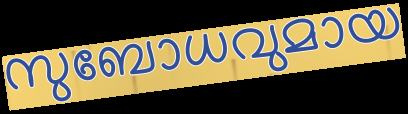
സുബോധവുമായ